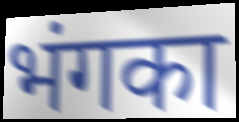
भंगका